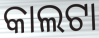
କାଲଟା